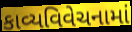
કાવ્યવિવેચનામાં